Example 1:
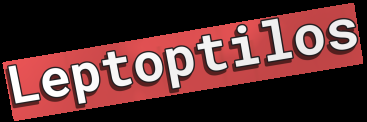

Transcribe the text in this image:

Leptoptilos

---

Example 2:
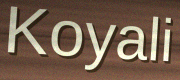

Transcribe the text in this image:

Koyali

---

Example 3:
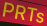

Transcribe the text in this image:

PRTs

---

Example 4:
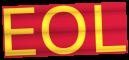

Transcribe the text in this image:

EOL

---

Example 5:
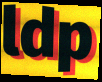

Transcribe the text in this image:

ldp